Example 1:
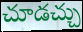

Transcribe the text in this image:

చూడచ్చు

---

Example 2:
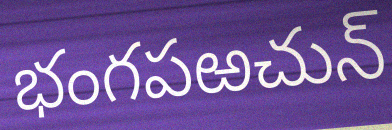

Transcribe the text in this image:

భంగపఱచున్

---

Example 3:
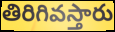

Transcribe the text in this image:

తిరిగివస్తారు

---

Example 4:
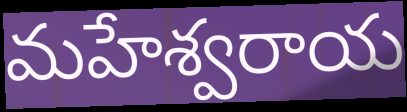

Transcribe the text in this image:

మహేశ్వరాయ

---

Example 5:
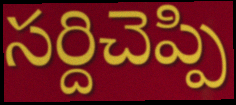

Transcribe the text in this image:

సర్దిచెప్పి